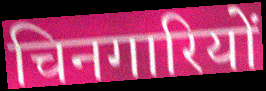
चिनगारियों